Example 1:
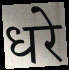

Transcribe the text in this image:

धरे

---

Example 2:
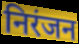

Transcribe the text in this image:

निरंजन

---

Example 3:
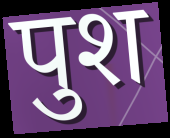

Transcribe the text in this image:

पुश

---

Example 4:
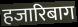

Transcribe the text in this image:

हजारिबाग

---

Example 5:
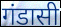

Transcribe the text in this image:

गंडासी